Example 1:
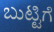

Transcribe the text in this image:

ಬುಟ್ಟಿಗೆ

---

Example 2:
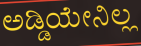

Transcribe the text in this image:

ಅಡ್ಡಿಯೇನಿಲ್ಲ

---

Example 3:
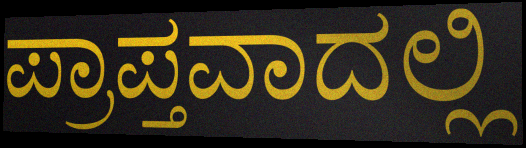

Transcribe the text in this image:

ಪ್ರಾಪ್ತವಾದಲ್ಲಿ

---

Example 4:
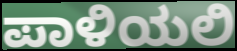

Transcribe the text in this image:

ಪಾಳಿಯಲಿ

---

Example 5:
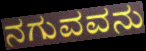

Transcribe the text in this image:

ನಗುವವನು